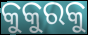
କୁକୁରକୁ